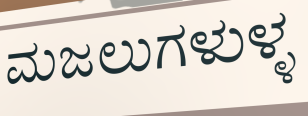
ಮಜಲುಗಳುಳ್ಳ